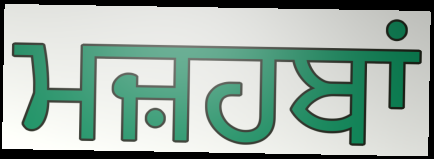
ਮਜ਼ਹਬਾਂ